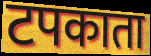
टपकाता